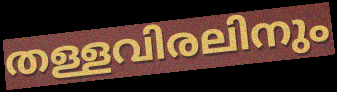
തള്ളവിരലിനും